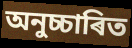
অনুচ্চাৰিত